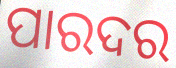
ପାରଦର